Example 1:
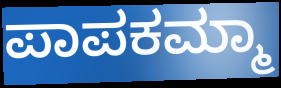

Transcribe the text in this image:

ಪಾಪಕಮ್ಮಾ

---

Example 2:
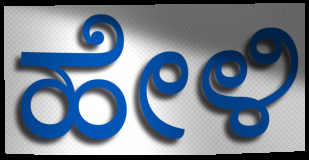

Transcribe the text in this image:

ಹೇಳಿ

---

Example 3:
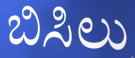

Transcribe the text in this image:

ಬಿಸಿಲು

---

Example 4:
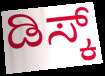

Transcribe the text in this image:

ಡಿಸ್ಕ್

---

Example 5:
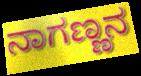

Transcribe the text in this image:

ನಾಗಣ್ಣನ